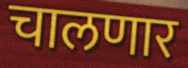
चालणार